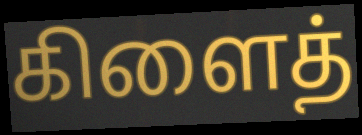
கிளைத்